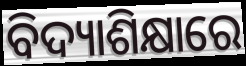
ବିଦ୍ୟାଶିକ୍ଷାରେ